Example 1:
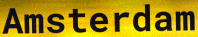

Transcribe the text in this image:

Amsterdam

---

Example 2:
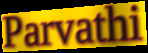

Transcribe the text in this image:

Parvathi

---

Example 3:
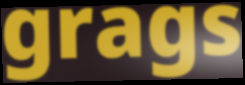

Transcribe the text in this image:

grags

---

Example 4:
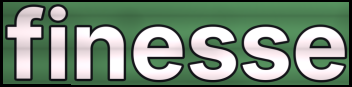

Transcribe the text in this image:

finesse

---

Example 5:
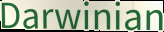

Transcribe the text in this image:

Darwinian